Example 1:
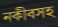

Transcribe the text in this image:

নকীবসহ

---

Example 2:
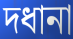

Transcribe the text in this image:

দধানা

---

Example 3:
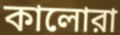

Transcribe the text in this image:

কালোরা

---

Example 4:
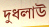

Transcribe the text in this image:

দুধলাউ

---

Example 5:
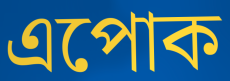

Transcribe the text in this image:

এপোক